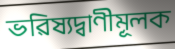
ভৱিষ্যদ্বাণীমূলক